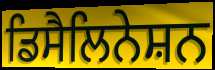
ਡਿਸੈਲਿਨੇਸ਼ਨ